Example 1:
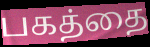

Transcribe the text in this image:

பகத்தை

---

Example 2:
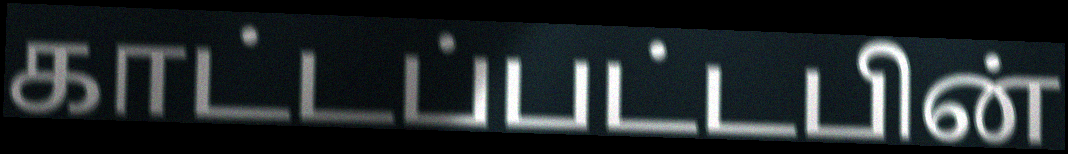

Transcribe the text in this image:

காட்டப்பட்டபின்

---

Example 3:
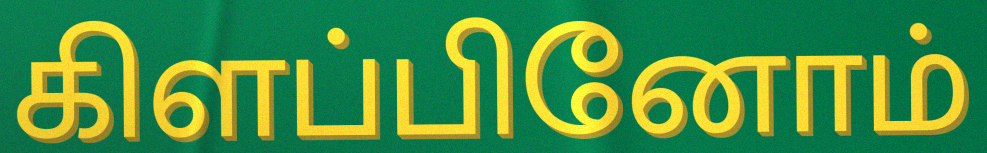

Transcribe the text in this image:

கிளப்பினோம்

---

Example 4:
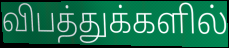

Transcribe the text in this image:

விபத்துக்களில்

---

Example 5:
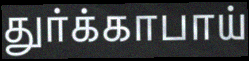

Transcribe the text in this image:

துர்க்காபாய்